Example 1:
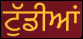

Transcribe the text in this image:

ਟੁੱਡੀਆਂ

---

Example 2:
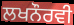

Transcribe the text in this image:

ਲਖਨੌਰਵੀ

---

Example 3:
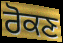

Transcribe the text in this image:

ਰੋਕਣ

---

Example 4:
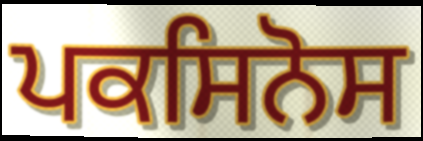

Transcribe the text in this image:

ਪਕਸਿਨੋਸ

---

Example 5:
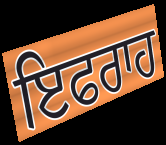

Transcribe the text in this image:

ਇਫਰਾਹ